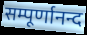
सम्पूर्णानन्द